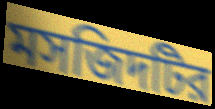
মসজিদটির